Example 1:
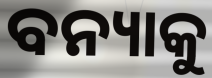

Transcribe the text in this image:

ବନ୍ୟାକୁ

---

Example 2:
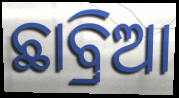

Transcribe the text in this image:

ଛାବ୍ରିଆ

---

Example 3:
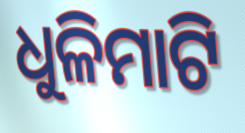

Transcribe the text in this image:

ଧୁଳିମାଟି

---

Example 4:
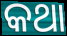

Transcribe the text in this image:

କଥା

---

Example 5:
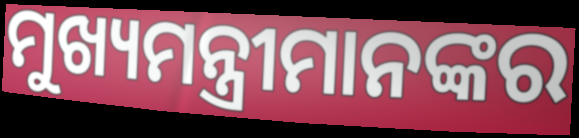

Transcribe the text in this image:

ମୁଖ୍ୟମନ୍ତ୍ରୀମାନଙ୍କର